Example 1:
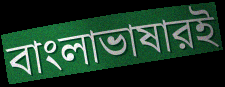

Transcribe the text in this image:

বাংলাভাষারই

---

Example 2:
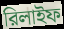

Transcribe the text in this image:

রিলাইফ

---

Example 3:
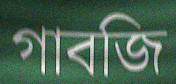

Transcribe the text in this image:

গাবজি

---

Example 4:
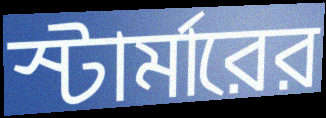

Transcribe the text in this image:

স্টার্মারের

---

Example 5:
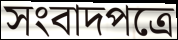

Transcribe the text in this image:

সংবাদপত্রে